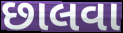
છાલવા